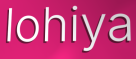
lohiya